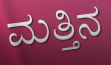
ಮತ್ತಿನ